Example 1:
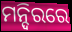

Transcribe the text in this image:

ମନ୍ଦିରରେ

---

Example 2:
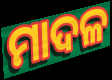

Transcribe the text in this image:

ମାଦଳ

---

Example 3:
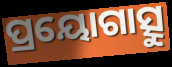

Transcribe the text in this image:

ପ୍ରୟୋଗାତ୍ସୁ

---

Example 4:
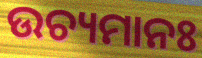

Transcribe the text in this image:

ଉଚ୍ୟମାନଃ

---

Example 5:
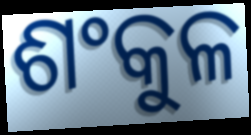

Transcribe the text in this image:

ଶଂକୁଳ